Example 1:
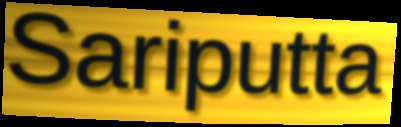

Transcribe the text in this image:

Sariputta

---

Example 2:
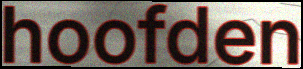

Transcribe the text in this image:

hoofden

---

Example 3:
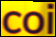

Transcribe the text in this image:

coi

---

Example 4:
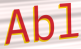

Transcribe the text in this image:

Abl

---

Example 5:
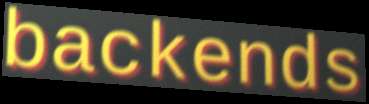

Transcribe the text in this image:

backends